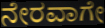
ನೇರವಾಗೇ